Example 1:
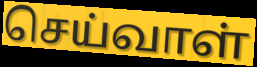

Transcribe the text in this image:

செய்வாள்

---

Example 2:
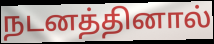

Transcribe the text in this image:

நடனத்தினால்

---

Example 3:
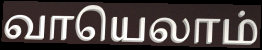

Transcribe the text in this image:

வாயெலாம்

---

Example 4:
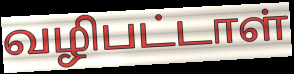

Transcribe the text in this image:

வழிபட்டாள்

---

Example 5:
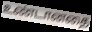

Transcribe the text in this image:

உண்டானதை